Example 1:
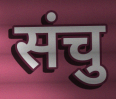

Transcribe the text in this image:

संचु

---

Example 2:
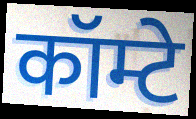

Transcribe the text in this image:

कॉम्टे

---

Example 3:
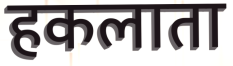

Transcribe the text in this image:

हकलाता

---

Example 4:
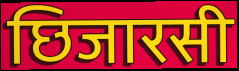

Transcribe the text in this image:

छिजारसी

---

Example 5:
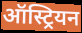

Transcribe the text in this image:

ऑस्ट्रियन